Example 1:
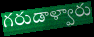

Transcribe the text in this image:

గరుడాళ్వారు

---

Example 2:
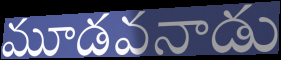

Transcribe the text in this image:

మూడవనాడు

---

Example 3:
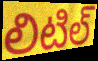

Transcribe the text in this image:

లిటిల్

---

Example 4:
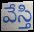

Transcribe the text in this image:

వేస్తి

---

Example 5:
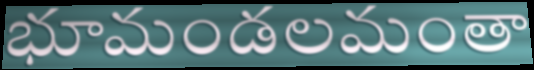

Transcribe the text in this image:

భూమండలమంతా